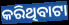
କରିଥିବାଟା